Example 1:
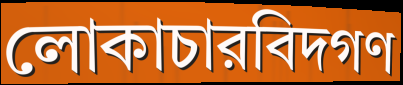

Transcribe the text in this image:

লোকাচারবিদগণ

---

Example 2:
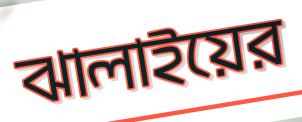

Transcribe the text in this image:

ঝালাইয়ের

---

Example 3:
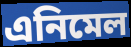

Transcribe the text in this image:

এনিমেল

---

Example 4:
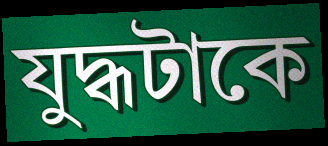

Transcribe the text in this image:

যুদ্ধটাকে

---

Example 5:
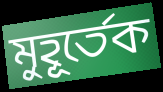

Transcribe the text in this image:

মুহূর্তেক